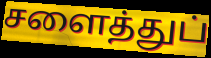
சளைத்துப்